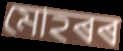
মোহৰৰ